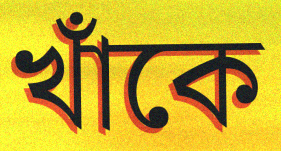
খাঁকে